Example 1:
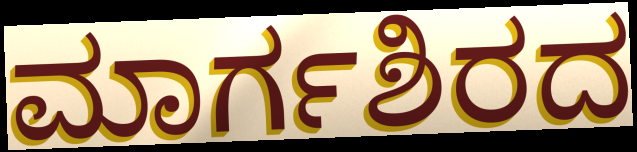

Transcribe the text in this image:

ಮಾರ್ಗಶಿರದ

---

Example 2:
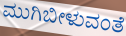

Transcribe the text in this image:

ಮುಗಿಬೀಳುವಂತೆ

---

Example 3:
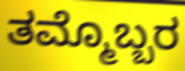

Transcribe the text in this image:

ತಮ್ಮೊಬ್ಬರ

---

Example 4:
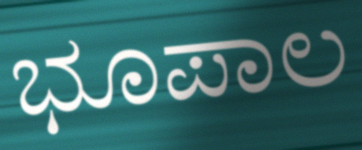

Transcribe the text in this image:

ಭೂಪಾಲ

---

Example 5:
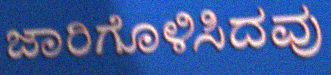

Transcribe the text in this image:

ಜಾರಿಗೊಳಿಸಿದವು